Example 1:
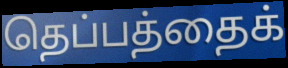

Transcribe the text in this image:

தெப்பத்தைக்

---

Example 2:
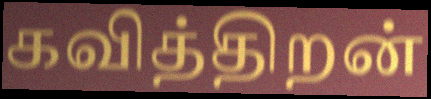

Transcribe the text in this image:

கவித்திறன்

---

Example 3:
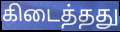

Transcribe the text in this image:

கிடைத்தது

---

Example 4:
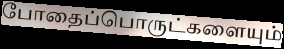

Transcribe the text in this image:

போதைப்பொருட்களையும்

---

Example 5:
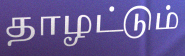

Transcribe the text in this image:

தாழட்டும்